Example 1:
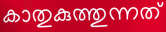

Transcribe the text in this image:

കാതുകുത്തുന്നത്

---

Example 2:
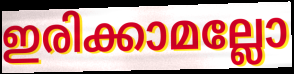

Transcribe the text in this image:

ഇരിക്കാമല്ലോ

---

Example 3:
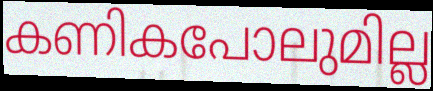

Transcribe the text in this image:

കണികപോലുമില്ല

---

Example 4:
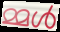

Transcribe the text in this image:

മ്മൾ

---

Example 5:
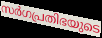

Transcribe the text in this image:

സർഗപ്രതിഭയുടെ